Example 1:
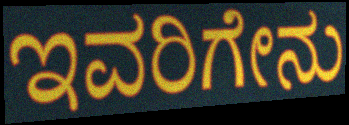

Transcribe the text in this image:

ಇವರಿಗೇನು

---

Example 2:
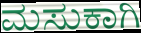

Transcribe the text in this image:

ಮಸುಕಾಗಿ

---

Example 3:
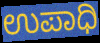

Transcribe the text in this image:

ಉಪಾಧಿ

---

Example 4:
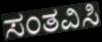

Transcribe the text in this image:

ಸಂತವಿಸಿ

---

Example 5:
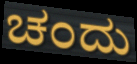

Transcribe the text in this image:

ಚಂದು